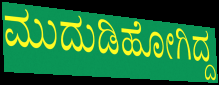
ಮುದುಡಿಹೋಗಿದ್ದ